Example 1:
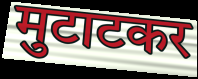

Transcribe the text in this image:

मुटाटकर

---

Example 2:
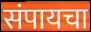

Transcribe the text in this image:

संपायचा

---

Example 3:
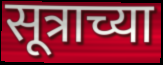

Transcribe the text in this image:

सूत्राच्या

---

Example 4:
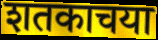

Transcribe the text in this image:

शतकाचया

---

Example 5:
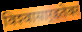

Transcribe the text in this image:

विश्वासार्हतेवर